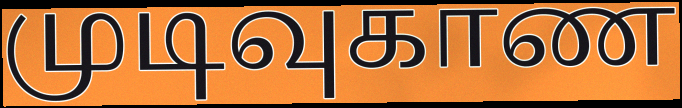
முடிவுகாண